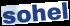
sohel